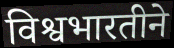
विश्वभारतीने